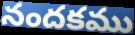
నందకము